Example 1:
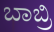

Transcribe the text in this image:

ಬಾಬ್ರಿ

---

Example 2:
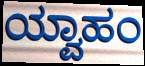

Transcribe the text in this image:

ಯ್ವಾಹಂ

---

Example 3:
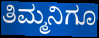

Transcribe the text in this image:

ತಿಮ್ಮನಿಗೂ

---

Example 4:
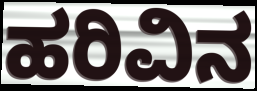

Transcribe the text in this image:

ಹರಿವಿನ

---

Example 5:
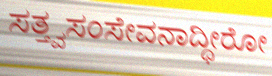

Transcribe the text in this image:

ಸತ್ತ್ವಸಂಸೇವನಾದ್ಧೀರೋ